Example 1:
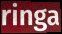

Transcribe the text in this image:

ringa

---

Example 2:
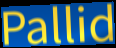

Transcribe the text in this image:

Pallid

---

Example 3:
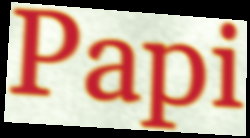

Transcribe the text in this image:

Papi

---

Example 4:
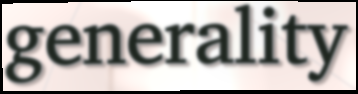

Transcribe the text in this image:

generality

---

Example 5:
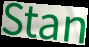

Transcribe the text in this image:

Stan